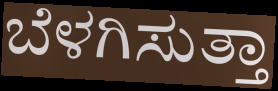
ಬೆಳಗಿಸುತ್ತಾ